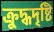
ক্রুদ্ধদৃষ্টি